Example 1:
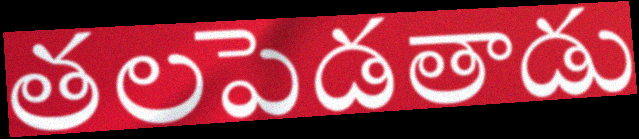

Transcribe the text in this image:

తలపెడతాడు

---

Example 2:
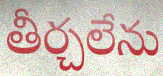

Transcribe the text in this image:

తీర్చలేను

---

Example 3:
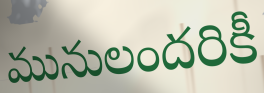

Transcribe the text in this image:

మునులందరికీ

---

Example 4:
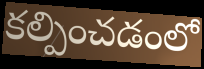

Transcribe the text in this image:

కల్పించడంలో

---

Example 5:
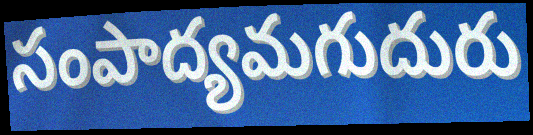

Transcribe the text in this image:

సంపాద్యమగుదురు